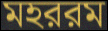
মহররম